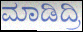
ಮಾಡಿದ್ರಿ